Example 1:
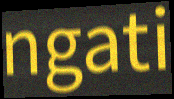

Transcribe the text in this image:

ngati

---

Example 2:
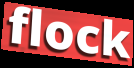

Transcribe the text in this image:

flock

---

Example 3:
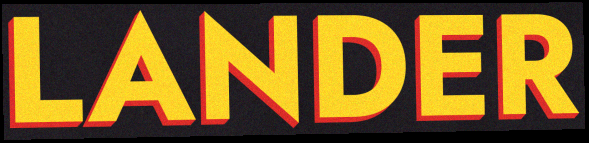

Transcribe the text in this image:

LANDER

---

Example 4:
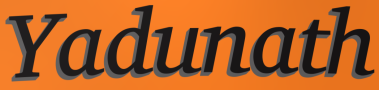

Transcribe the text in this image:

Yadunath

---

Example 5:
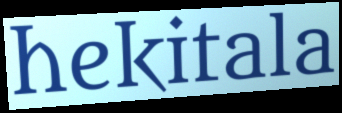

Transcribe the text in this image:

hekitala